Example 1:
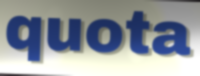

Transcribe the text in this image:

quota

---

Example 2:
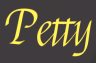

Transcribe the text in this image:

Petty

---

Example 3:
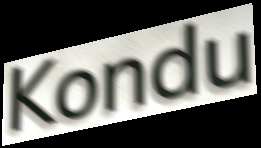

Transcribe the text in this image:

Kondu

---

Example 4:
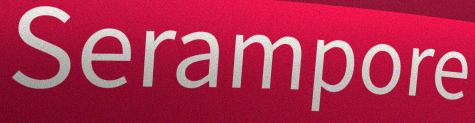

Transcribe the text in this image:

Serampore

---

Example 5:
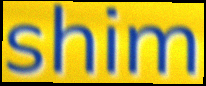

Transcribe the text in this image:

shim